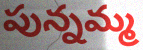
పున్నమ్మ